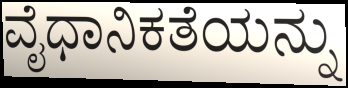
ವೈಧಾನಿಕತೆಯನ್ನು